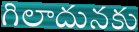
గిలాదునకు